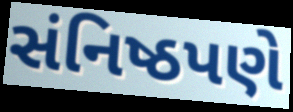
સંનિષ્ઠપણે